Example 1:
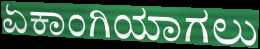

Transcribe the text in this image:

ಏಕಾಂಗಿಯಾಗಲು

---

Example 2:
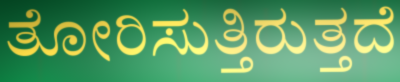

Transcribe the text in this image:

ತೋರಿಸುತ್ತಿರುತ್ತದೆ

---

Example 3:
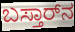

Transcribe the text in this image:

ಬಸ್ತಾರ್‌ನ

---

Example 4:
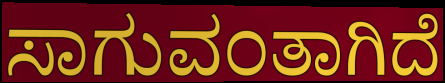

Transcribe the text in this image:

ಸಾಗುವಂತಾಗಿದೆ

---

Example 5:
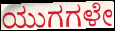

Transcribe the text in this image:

ಯುಗಗಳೇ